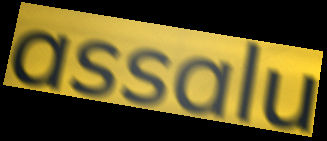
assalu